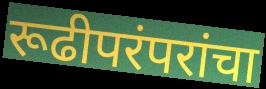
रूढीपरंपरांचा